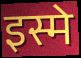
इस्मे